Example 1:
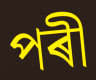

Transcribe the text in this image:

পৰী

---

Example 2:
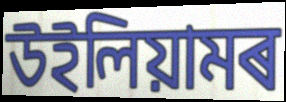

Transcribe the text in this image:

উইলিয়ামৰ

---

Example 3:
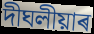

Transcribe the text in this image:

দীঘলীয়াৰ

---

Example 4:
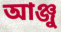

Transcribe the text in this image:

আঞ্জু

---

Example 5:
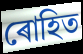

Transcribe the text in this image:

ৰোহিত